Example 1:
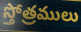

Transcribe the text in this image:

స్తోత్రములు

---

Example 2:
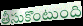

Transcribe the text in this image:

తీసుకొంటుంది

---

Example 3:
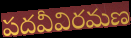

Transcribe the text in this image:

పదవీవిరమణ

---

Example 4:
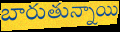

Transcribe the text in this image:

బారుతున్నాయి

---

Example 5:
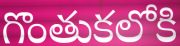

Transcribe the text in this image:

గొంతుకలోకి